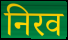
निरव